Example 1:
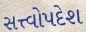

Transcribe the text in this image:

સત્ત્વોપદેશ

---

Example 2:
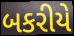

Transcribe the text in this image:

બકરીયે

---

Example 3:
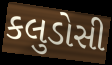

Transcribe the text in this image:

કલુડોસી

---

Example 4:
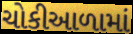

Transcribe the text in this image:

ચોકીઆળામાં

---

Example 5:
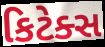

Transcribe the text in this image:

કિટેક્સ